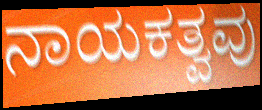
ನಾಯಕತ್ವವು